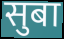
सुबा